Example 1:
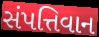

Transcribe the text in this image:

સંપત્તિવાન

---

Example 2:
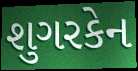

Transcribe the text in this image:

શુગરકેન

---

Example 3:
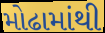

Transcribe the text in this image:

મોઢામાંથી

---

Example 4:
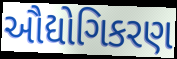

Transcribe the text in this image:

ઔદ્યોગિકરણ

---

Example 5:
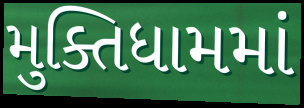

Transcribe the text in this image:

મુક્તિધામમાં